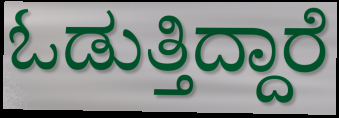
ಓಡುತ್ತಿದ್ದಾರೆ